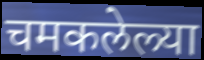
चमकलेल्या